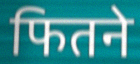
फितने